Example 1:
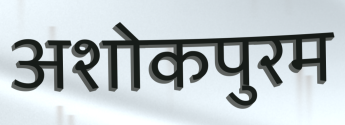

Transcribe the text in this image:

अशोकपुरम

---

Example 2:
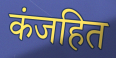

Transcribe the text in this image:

कंजहित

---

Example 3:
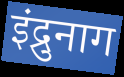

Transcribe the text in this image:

इंद्रुनाग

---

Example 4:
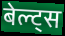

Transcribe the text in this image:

बेल्ट्स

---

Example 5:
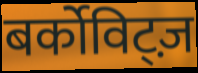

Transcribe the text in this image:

बर्कोविट्ज़